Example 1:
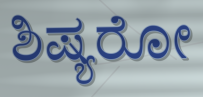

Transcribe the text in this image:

ಶಿಷ್ಯರೋ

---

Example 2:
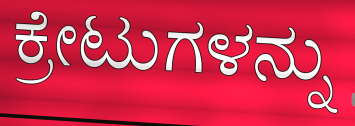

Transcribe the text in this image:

ಕ್ರೇಟುಗಳನ್ನು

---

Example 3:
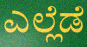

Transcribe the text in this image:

ಎಲ್ಲೆಡೆ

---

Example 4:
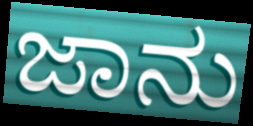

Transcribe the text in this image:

ಜಾನು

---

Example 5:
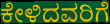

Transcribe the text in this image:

ಕೇಳಿದವರಿಗೆ